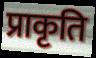
प्राकृति